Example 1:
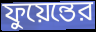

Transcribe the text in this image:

ফুয়েন্তের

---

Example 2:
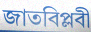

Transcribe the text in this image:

জাতবিপ্লবী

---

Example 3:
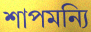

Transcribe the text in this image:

শাপমন্যি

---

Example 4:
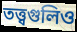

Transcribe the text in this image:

তত্ত্বগুলিও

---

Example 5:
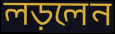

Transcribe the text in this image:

লড়লেন